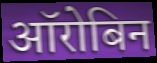
ऑरोबिन